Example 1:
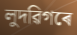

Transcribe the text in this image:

লুদৱিগৰে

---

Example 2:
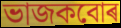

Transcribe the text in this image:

ভাজকবোৰ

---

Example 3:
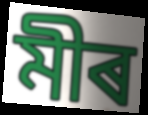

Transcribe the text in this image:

মীৰ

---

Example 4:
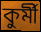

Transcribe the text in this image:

কুৰ্মী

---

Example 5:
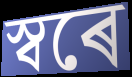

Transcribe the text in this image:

স্বৰে